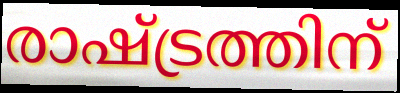
രാഷ്ട്രത്തിന്